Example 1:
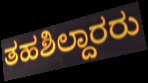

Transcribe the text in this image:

ತಹಶಿಲ್ದಾರರು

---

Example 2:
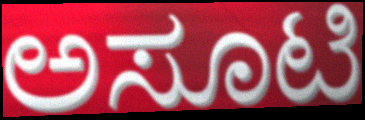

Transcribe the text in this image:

ಅಸೂಟಿ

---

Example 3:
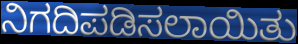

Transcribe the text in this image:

ನಿಗದಿಪಡಿಸಲಾಯಿತು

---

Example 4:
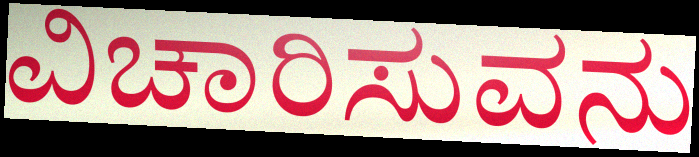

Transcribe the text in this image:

ವಿಚಾರಿಸುವನು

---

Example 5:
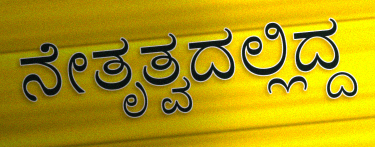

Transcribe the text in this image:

ನೇತೃತ್ವದಲ್ಲಿದ್ದ